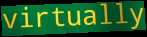
virtually